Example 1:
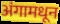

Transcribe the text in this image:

अंगामधून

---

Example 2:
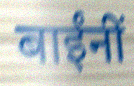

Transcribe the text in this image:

बाईंनीं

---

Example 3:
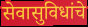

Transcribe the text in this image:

सेवासुविधांचे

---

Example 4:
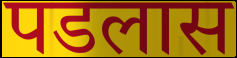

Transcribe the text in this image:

पडलास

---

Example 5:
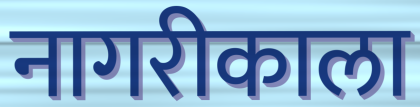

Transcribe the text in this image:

नागरीकाला